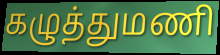
கழுத்துமணி